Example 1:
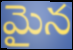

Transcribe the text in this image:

మైన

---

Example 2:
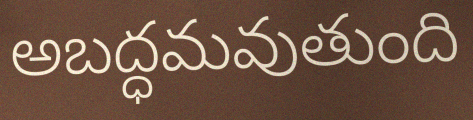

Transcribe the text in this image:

అబద్ధమవుతుంది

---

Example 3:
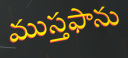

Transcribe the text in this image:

ముస్తఫాను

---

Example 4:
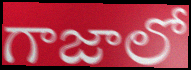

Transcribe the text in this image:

గాజాలో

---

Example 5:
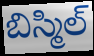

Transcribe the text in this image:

బిస్మిల్